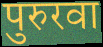
पुरुरवा